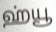
ஹ்யூ